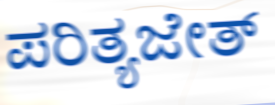
ಪರಿತ್ಯಜೇತ್